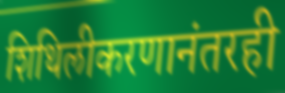
शिथिलीकरणानंतरही